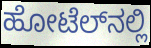
ಹೋಟೆಲ್‌ನಲ್ಲಿ